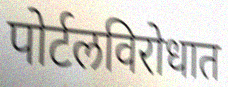
पोर्टलविरोधात